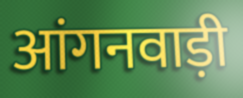
आंगनवाड़ी